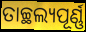
ତାଚ୍ଛଲ୍ୟପୂର୍ଣ୍ଣ